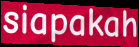
siapakah